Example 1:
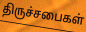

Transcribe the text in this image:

திருச்சபைகள்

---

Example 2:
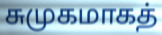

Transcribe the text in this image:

சுமுகமாகத்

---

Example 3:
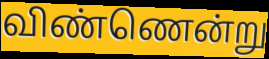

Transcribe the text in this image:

விண்ணென்று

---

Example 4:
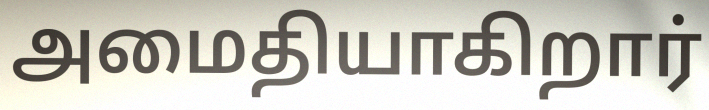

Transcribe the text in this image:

அமைதியாகிறார்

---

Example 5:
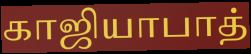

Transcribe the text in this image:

காஜியாபாத்